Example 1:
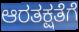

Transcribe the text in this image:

ಆರತಕ್ಷತೆಗೆ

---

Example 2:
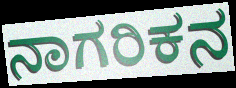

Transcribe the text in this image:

ನಾಗರಿಕನ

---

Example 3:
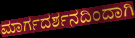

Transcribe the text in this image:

ಮಾರ್ಗದರ್ಶನದಿಂದಾಗಿ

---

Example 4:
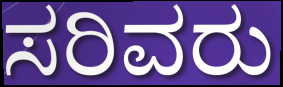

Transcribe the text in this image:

ಸರಿವರು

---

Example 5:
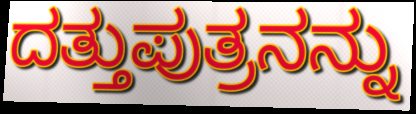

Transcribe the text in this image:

ದತ್ತುಪುತ್ರನನ್ನು